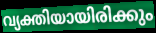
വ്യക്തിയായിരിക്കും